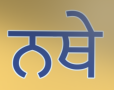
ਨਥੇ